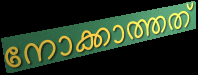
നോക്കാത്തത്